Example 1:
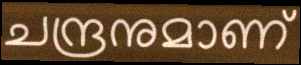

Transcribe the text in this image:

ചന്ദ്രനുമാണ്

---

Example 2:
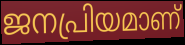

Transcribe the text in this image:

ജനപ്രിയമാണ്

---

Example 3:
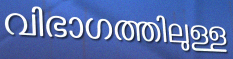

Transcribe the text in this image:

വിഭാഗത്തിലുള്ള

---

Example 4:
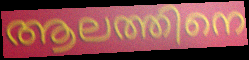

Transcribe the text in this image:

ആലത്തിനെ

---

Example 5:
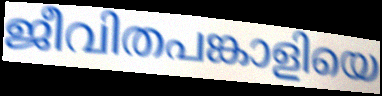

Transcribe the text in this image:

ജീവിതപങ്കാളിയെ